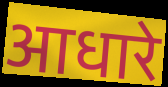
आधारे